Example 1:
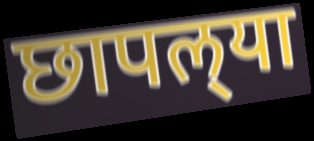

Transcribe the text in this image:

छापल्या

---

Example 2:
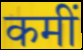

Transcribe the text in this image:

कमीं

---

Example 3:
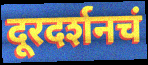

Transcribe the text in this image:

दूरदर्शनचं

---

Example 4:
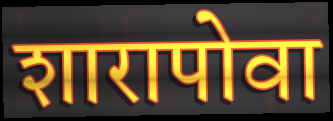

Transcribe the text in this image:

शारापोवा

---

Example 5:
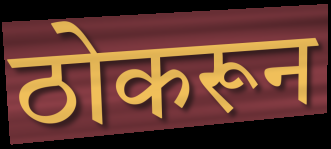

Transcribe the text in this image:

ठोकरून